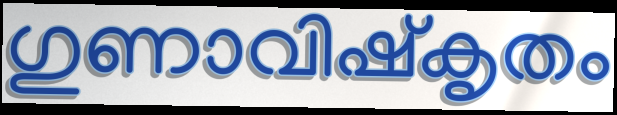
ഗുണാവിഷ്കൃതം